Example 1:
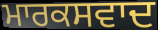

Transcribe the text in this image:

ਮਾਰਕਸਵਾਦ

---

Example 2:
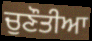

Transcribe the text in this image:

ਚੁਣੌਤੀਆ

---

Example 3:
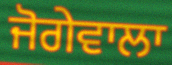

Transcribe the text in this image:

ਜੋਗੇਵਾਲਾ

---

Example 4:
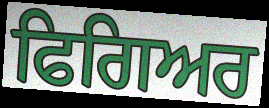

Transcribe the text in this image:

ਫਿਗਿਅਰ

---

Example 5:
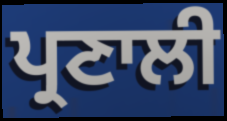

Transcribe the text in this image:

ਪ੍ਰਣਾਲੀ